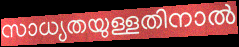
സാധ്യതയുള്ളതിനാൽ